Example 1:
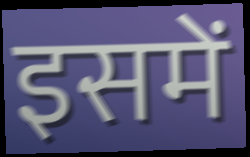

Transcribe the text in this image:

इसमें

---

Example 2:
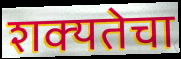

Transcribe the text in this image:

शक्‍यतेचा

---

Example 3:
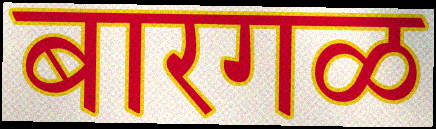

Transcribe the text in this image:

बारगळ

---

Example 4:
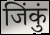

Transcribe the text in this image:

जिंकुं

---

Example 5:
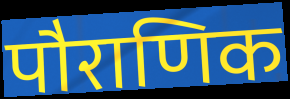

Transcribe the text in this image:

पौराणिक